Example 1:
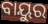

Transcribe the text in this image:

ବାୟୁର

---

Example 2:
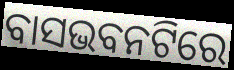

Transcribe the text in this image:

ବାସଭବନଟିରେ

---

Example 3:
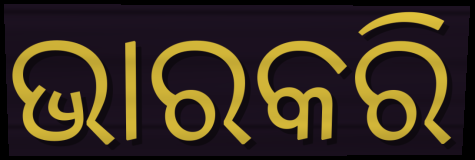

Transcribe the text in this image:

ଭାରକରି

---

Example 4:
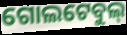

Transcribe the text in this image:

ଗୋଲଟେବୁଲ୍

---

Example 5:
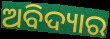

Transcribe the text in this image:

ଅବିଦ୍ୟାର